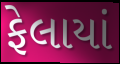
ફેલાયાં